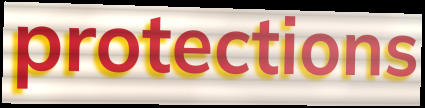
protections